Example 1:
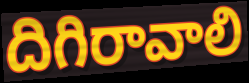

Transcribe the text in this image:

దిగిరావాలి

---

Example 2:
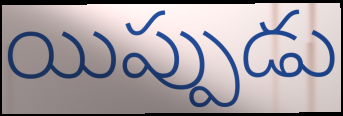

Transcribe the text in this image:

యిప్పుడు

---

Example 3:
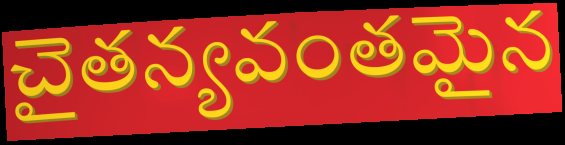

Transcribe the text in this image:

చైతన్యవంతమైన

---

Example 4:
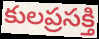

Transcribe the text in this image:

కులప్రసక్తి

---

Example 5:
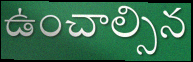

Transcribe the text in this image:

ఉంచాల్సిన